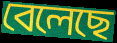
বেলেছে